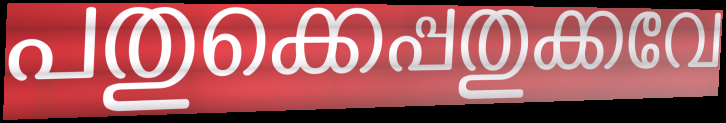
പതുക്കെപ്പതുക്കവേ